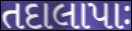
તદાલાપાઃ